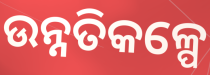
ଉନ୍ନତିକଳ୍ପେ